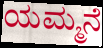
ಯಮ್ಮನೆ